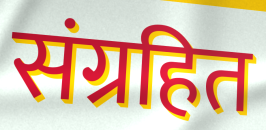
संग्रहित